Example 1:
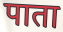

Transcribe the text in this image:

पाता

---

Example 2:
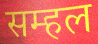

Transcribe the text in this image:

सम्हल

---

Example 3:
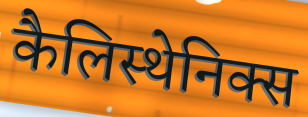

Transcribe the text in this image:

कैलिस्थेनिक्स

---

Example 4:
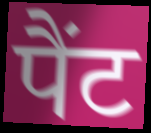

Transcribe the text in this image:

पैंट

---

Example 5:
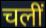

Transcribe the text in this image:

चलीं